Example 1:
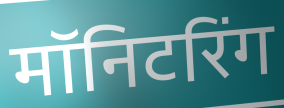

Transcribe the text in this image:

मॉनिटरिंग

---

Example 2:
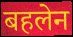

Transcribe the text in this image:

बहलेन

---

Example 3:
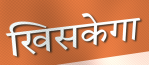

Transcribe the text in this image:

खिसकेगा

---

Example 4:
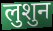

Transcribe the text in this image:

लुशुन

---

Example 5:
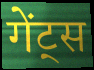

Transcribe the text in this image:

गेंट्स